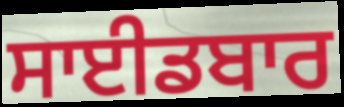
ਸਾਈਡਬਾਰ